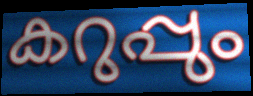
കറുപ്പും